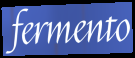
fermento